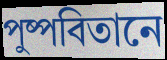
পুষ্পবিতানে